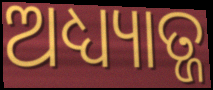
ଅଧ୍ୟ୍ୟାତ୍ଜ